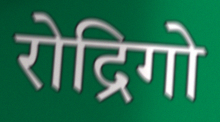
रोद्रिगो